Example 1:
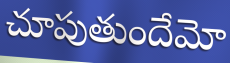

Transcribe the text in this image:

చూపుతుందేమో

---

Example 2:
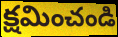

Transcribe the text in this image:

క్షమించండి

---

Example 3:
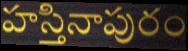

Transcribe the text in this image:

హస్తినాపురం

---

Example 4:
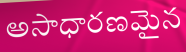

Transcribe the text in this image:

అసాధారణమైన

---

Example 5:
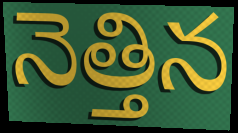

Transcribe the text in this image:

నెత్తిన